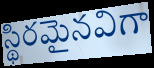
స్థిరమైనవిగా